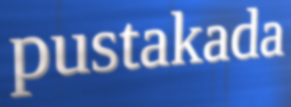
pustakada